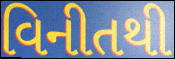
વિનીતથી